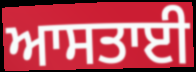
ਆਸਤਾਈ